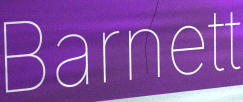
Barnett